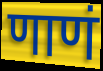
णाणं